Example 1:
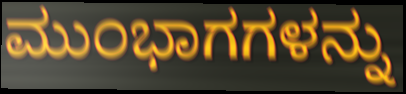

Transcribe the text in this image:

ಮುಂಭಾಗಗಳನ್ನು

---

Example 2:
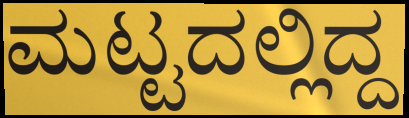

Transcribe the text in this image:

ಮಟ್ಟದಲ್ಲಿದ್ದ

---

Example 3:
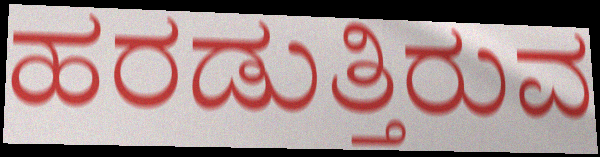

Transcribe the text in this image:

ಹರಡುತ್ತಿರುವ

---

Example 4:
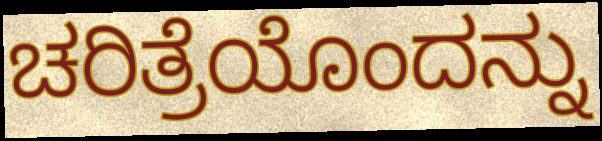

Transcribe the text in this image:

ಚರಿತ್ರೆಯೊಂದನ್ನು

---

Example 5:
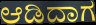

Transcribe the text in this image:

ಆಡಿದಾಗ